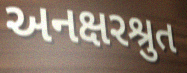
અનક્ષરશ્રુત